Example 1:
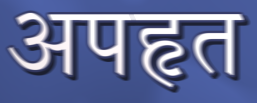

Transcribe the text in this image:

अपहृत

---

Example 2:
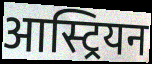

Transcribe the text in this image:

आस्ट्रियन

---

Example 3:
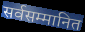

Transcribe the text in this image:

सर्वसम्मानित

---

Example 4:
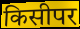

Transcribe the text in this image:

किसीपर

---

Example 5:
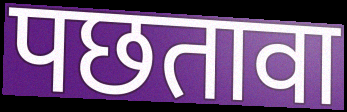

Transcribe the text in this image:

पछतावा